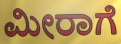
ಮೀರಾಗೆ